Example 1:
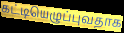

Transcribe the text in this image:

கட்டியெழுப்புவதாக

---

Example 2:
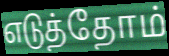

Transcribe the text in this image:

எடுத்தோம்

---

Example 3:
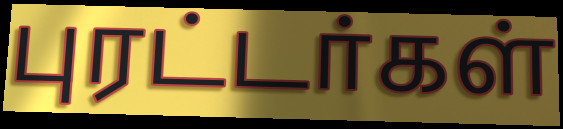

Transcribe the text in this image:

புரட்டர்கள்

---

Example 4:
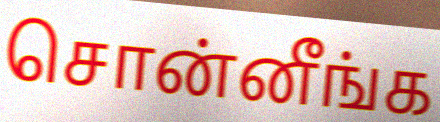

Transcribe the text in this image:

சொன்னீங்க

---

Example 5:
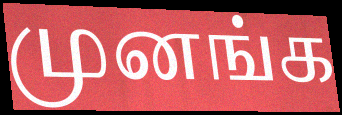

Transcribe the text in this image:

முனங்க